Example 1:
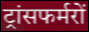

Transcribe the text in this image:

ट्रांसफर्मरों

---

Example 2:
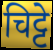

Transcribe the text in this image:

चिट्टे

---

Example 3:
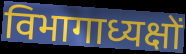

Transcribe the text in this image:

विभागाध्यक्षों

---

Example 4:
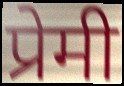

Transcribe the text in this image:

प्रेमी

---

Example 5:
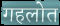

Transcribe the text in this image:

गहलोत